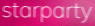
starparty